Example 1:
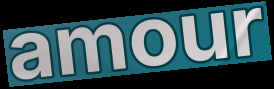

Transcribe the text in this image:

amour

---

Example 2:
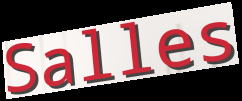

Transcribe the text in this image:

Salles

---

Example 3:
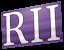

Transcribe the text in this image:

RII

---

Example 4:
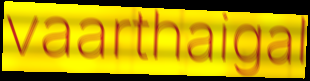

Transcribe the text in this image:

vaarthaigal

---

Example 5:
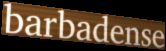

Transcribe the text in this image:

barbadense